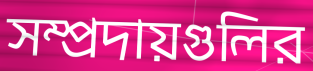
সম্প্রদায়গুলির